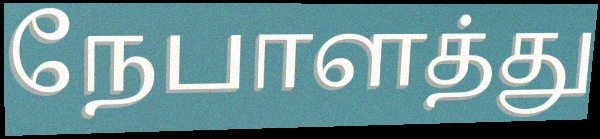
நேபாளத்து